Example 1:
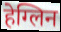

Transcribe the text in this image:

हेग्लिन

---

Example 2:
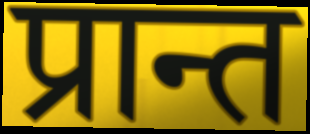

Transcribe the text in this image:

प्रान्त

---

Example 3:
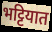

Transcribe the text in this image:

भट्टियात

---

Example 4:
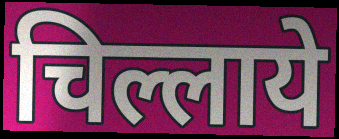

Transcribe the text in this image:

चिल्लाये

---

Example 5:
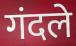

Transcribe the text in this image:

गंदले